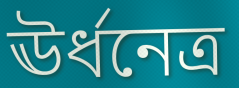
ঊর্ধনেত্র